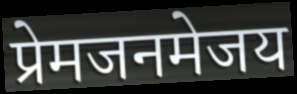
प्रेमजनमेजय